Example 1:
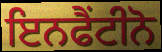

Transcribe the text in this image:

ਇਨਫੈਂਟੀਨੋ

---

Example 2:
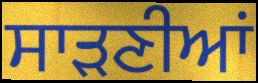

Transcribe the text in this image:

ਸਾੜਣੀਆਂ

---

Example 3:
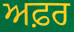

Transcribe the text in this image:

ਅਫ਼ਰ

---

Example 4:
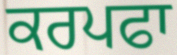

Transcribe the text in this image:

ਕਰਪਫਾ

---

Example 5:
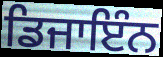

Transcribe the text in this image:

ਡਿਜਾਇੰਨ